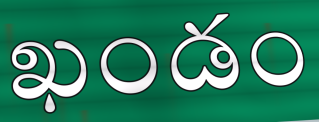
ఖండం